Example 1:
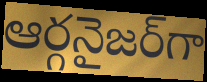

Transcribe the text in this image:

ఆర్గనైజర్‌గా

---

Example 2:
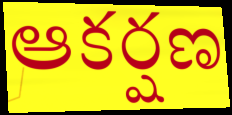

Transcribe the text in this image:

ఆకర్షణ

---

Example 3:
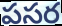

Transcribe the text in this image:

పసర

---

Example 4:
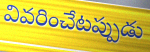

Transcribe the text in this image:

వివరించేటప్పుడు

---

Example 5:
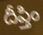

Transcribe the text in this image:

దీప్తిం